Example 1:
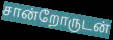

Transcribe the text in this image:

சான்றோருடன்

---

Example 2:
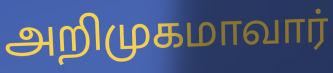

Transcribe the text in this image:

அறிமுகமாவார்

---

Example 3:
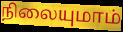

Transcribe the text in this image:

நிலையுமாம்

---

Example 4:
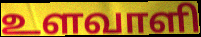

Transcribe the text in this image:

உளவாளி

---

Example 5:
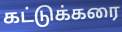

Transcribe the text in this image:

கட்டுக்கரை